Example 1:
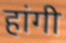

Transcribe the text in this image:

हांगी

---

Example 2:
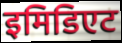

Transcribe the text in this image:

इमिडिएट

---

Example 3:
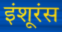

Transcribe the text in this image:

इंशूरंस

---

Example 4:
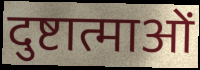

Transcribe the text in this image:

दुष्टात्माओं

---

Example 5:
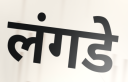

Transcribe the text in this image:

लंगडे